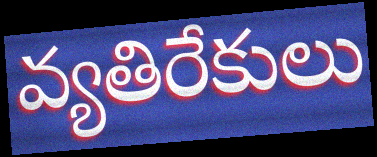
వ్యతిరేకులు